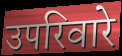
उपरिवारे